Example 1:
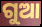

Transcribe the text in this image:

ଗୁଆ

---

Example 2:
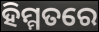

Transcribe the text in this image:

ହିମ୍ମତରେ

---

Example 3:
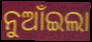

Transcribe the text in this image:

ନୁଆଁଇଲା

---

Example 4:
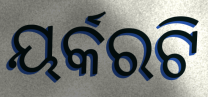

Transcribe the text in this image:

ୟର୍କରଟି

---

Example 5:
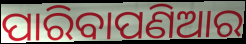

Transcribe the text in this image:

ପାରିବାପଣିଆର